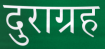
दुराग्रह